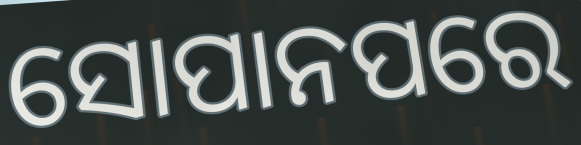
ସୋପାନପରେ